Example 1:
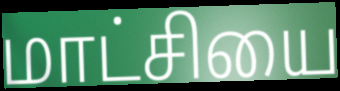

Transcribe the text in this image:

மாட்சியை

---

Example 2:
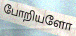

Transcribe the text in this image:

போறியளோ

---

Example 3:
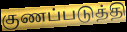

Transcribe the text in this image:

குணப்படுத்தி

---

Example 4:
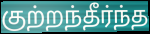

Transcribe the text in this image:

குற்றந்தீர்ந்த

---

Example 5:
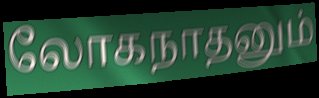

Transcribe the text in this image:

லோகநாதனும்